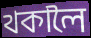
থকালৈ